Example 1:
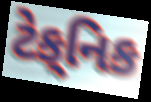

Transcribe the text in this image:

ટેક્‌નિક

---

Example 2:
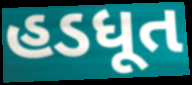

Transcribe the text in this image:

હડધૂત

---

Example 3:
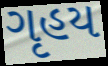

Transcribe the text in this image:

ગૃહય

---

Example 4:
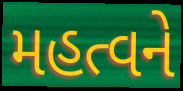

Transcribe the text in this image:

મહત્વને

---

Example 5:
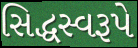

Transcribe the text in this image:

સિદ્ધસ્વરૂપે